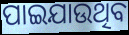
ପାଇଯାଉଥିବ